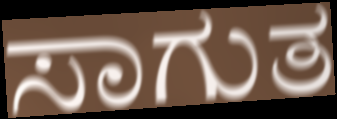
ಸಾಗುತ